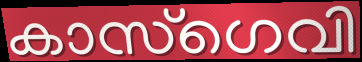
കാസ്ഗെവി